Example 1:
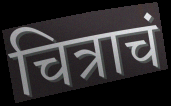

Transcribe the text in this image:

चित्राचं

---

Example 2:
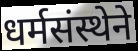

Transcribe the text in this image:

धर्मसंस्थेने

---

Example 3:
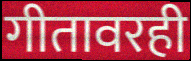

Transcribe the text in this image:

गीतावरही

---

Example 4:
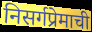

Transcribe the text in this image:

निसर्गप्रेमाची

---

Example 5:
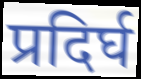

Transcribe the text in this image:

प्रदिर्घ